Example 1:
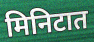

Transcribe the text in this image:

मिनिटात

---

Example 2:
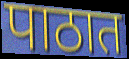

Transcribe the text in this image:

पाठात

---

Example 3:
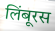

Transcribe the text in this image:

लिंबूरस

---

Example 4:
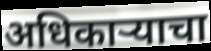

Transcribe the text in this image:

अधिकार्‍याचा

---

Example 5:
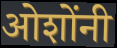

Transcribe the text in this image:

ओशोंनी